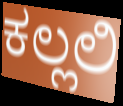
ಕಲ್ಲಲಿ